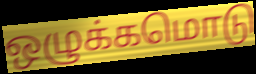
ஒழுக்கமொடு